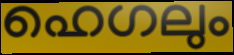
ഹെഗലും